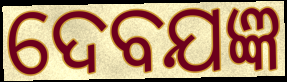
ଦେବଯଜ୍ଞ